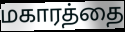
மகாரத்தை